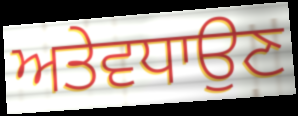
ਅਤੇਵਧਾਉਣ